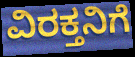
ವಿರಕ್ತನಿಗೆ